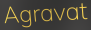
Agravat